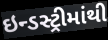
ઇન્ડસ્ટ્રીમાંથી